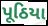
પૂઠિયા